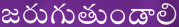
జరుగుతుండాలి